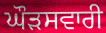
ਘੌੜਸਵਾਰੀ